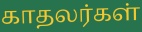
காதலர்கள்